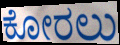
ಕೋರಲು